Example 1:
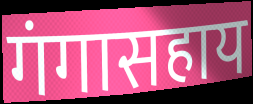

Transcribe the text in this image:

गंगासहाय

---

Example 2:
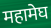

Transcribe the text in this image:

महामेघ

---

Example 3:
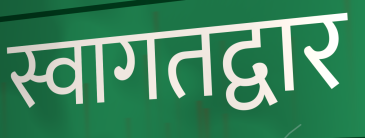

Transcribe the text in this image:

स्वागतद्वार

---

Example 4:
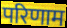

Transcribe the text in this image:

परिणाम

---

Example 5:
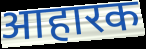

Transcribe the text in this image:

आहारक